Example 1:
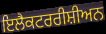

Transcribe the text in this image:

ਇਲੈਕਟਰਰੀਸ਼ੀਅਨ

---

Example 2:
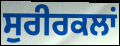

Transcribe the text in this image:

ਸੁਰੀਰਕਲਾਂ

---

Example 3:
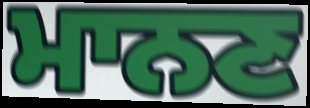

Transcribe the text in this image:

ਮਾਨਣ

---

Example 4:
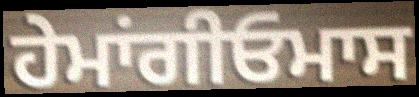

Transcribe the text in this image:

ਹੇਮਾਂਗੀਓਮਾਸ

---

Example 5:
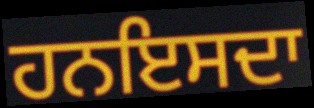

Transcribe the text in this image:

ਹਨਇਸਦਾ